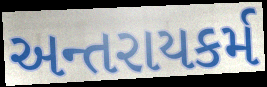
અન્તરાયકર્મ